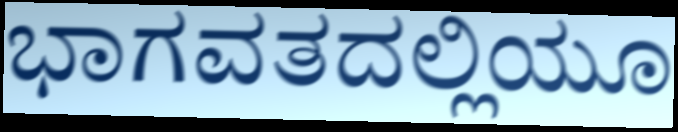
ಭಾಗವತದಲ್ಲಿಯೂ